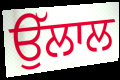
ਉੱਲਾਲ